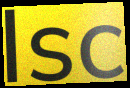
Isc